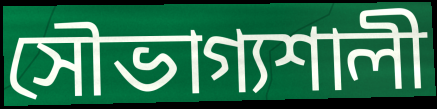
সৌভাগ্যশালী